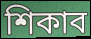
শিকাব